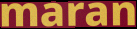
maran